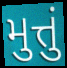
મુત્તું